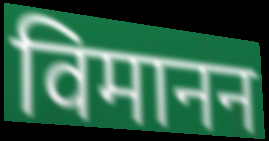
विमानन